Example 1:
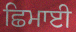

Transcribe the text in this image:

ਛਿਮਾਈ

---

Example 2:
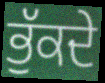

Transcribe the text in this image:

ਭੁੱਕਦੇ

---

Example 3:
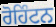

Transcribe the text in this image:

ਰੋਹਿੰਟਨ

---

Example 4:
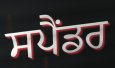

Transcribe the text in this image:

ਸਪੈਂਡਰ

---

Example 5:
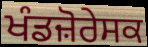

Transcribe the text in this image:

ਖੰਡਜ਼ੋਰੇਸਕ